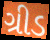
ગ્રીડ